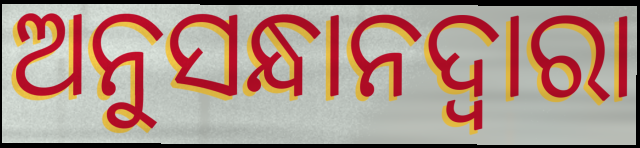
ଅନୁସନ୍ଧାନଦ୍ୱାରା